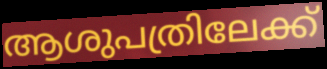
ആശുപത്രിലേക്ക്